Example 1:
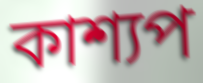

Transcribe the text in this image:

কাশ্যপ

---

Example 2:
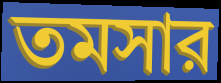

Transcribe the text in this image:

তমসার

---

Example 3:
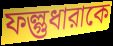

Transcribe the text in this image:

ফল্গুধারাকে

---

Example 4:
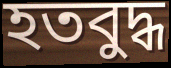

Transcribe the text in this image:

হতবুদ্ধ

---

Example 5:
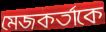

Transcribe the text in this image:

মেজকর্তাকে